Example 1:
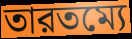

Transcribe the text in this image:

তারতম্যে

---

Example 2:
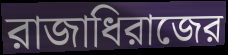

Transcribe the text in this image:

রাজাধিরাজের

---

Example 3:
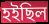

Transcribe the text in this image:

হইছিল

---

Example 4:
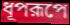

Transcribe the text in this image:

ধূপরূপে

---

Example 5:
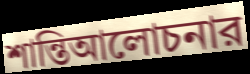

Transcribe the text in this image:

শান্তিআলোচনার